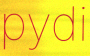
pydi